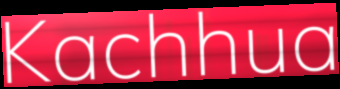
Kachhua